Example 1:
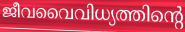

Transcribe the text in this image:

ജീവവൈവിധ്യത്തിന്റെ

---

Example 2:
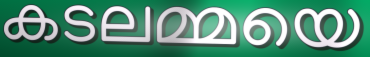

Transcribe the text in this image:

കടലമ്മയെ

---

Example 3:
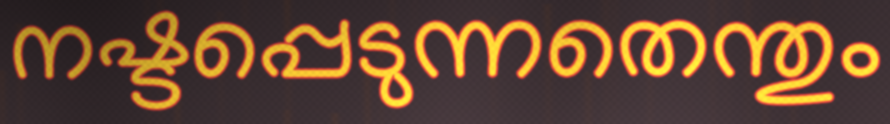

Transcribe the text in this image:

നഷ്ടപ്പെടുന്നതെന്തും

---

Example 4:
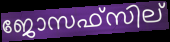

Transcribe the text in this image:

ജോസഫ്സില്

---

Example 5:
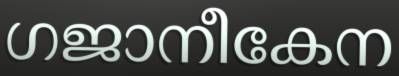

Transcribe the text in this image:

ഗജാനീകേന